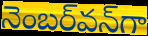
నెంబర్‌వన్‌గా